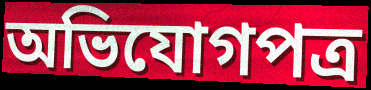
অভিযোগপত্র